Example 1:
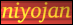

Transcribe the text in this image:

niyojan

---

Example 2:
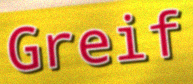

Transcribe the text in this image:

Greif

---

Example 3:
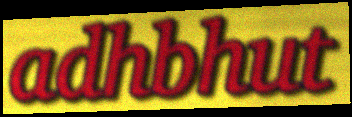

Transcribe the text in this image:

adhbhut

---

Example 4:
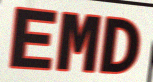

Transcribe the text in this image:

EMD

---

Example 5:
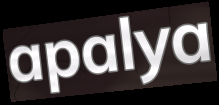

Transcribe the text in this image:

apalya